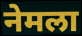
नेमला